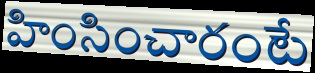
హింసించారంటే